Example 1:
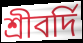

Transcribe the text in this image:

শ্রীবর্দি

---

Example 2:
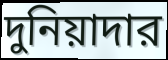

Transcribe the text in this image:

দুনিয়াদার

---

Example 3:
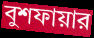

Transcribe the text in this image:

বুশফায়ার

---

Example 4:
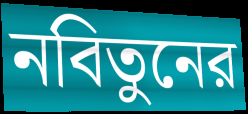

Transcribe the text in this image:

নবিতুনের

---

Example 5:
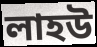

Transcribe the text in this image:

লাহউ